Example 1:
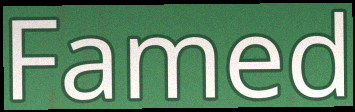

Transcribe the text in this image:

Famed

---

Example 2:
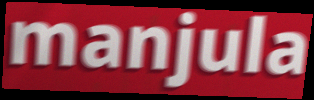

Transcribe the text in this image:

manjula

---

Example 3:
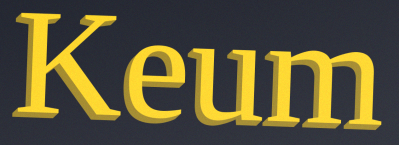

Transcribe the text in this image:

Keum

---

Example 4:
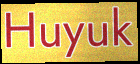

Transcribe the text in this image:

Huyuk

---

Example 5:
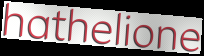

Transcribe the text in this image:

hathelione